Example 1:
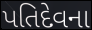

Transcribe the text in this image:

પતિદેવના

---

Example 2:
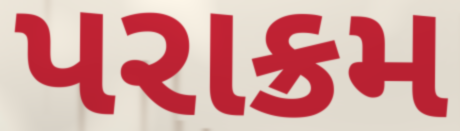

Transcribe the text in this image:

પરાક્રમ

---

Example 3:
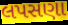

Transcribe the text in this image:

લપસણા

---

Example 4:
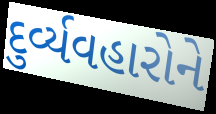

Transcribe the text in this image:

દુર્વ્યવહારોને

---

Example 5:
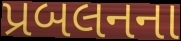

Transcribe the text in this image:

પ્રબલનના